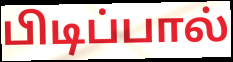
பிடிப்பால்